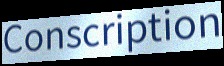
Conscription